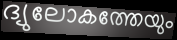
ദ്യുലോകത്തേയും